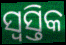
ସ୍ୱସ୍ତିକ